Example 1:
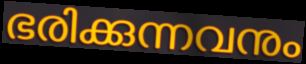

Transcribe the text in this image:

ഭരിക്കുന്നവനും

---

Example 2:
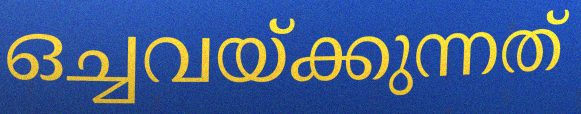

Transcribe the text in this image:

ഒച്ചവയ്ക്കുന്നത്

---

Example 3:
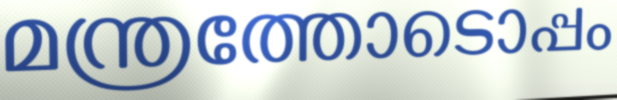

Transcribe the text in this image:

മന്ത്രത്തോടൊപ്പം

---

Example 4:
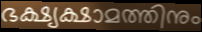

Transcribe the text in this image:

ഭക്ഷ്യക്ഷാമത്തിനും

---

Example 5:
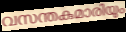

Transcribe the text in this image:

വസന്തകുമാരിയും